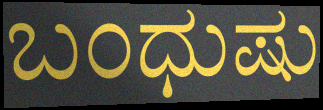
ಬಂಧುಷು